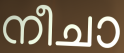
നീചാ